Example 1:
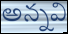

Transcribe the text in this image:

అన్నవి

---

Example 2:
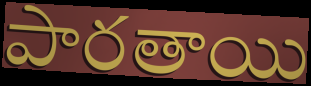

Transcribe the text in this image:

పారతాయి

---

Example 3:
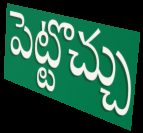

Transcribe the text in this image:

పెట్టొచ్చు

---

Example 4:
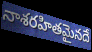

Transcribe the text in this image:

నాశరహితమైనదే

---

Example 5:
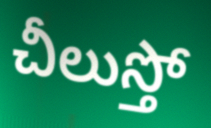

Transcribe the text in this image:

చీలుస్తో